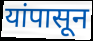
यांपासून